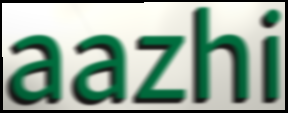
aazhi